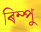
ৰিম্পু